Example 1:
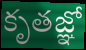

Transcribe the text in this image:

కృతజ్ఞో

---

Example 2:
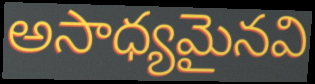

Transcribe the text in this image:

అసాధ్యమైనవి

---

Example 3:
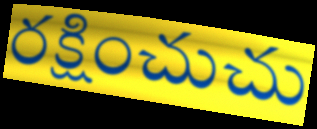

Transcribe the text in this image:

రక్షించుచు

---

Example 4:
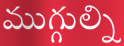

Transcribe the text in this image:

ముగ్గుల్ని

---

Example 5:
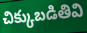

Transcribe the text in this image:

చిక్కుబడితివి